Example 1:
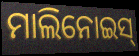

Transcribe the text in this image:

ମାଲିନୋଇସ୍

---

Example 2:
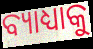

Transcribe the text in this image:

ବ୍ୟାଧ୍ୟାକୁ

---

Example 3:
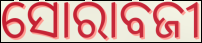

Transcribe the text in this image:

ସୋରାବଜୀ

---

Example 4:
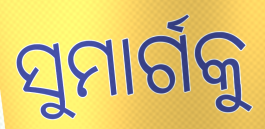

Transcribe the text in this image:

ସୁମାର୍ଗକୁ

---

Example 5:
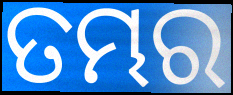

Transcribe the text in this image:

ତମ୍ଭର